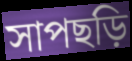
সাপছড়ি